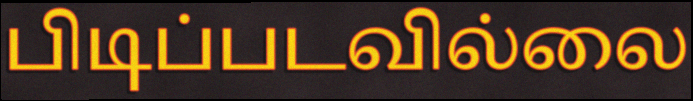
பிடிப்படவில்லை